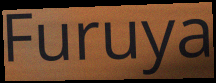
Furuya